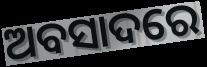
ଅବସାଦରେ